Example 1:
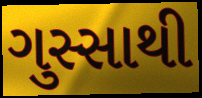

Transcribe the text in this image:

ગુસ્સાથી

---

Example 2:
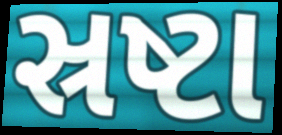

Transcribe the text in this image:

સ્રષ્ટા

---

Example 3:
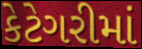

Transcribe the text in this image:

કેટેગરીમાં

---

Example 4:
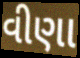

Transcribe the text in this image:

વીણા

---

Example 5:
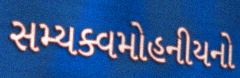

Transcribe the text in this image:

સમ્યક્વમોહનીયનો